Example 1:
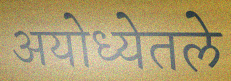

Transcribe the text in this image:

अयोध्येतले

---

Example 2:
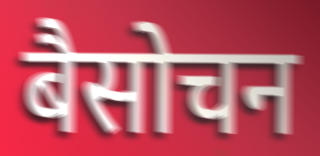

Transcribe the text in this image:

बैसोचन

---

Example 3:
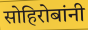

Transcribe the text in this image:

सोहिरोबांनी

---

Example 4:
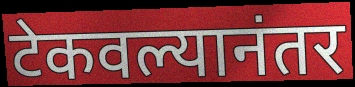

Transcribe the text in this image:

टेकवल्यानंतर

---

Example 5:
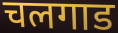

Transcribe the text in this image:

चलगाड